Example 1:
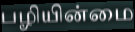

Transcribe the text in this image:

பழியின்மை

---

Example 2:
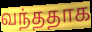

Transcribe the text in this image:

வந்ததாக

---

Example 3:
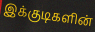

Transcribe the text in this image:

இக்குடிகளின்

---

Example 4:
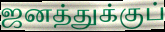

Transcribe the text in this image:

ஜனத்துக்குப்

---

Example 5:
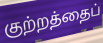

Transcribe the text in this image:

குற்றத்தைப்